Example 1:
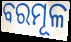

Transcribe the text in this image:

ବରମୂଳ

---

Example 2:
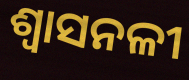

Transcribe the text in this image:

ଶ୍ଵାସନଳୀ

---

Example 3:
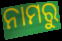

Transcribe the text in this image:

ନାମରୁ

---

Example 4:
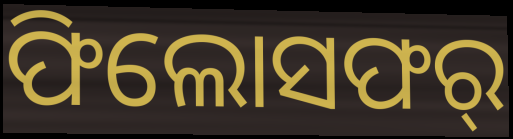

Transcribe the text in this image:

ଫିଲୋସଫର୍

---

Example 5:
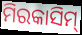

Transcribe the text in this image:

ମିରକାସିମ୍